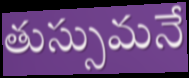
తుస్సుమనే